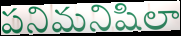
పనిమనిషిలా